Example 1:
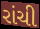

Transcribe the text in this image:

રાંચી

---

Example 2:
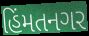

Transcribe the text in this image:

હિંમતનગર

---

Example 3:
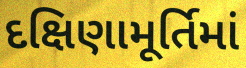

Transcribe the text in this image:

દક્ષિણામૂર્તિમાં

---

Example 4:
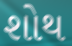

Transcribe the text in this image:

શોથ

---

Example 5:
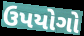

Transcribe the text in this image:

ઉપયોગો